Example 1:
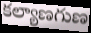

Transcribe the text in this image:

కల్యాణగుణ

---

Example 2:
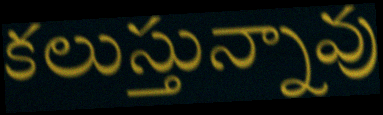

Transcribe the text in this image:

కలుస్తున్నావు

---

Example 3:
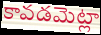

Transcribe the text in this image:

కావడమెట్లా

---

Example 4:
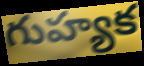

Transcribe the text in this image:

గుహ్యక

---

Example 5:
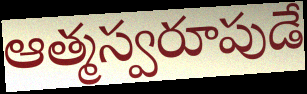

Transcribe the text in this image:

ఆత్మస్వరూపుడే